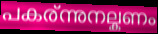
പകര്ന്നുനല്കണം